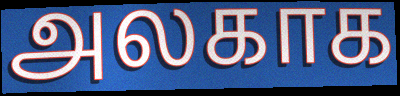
அலகாக